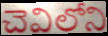
చెవిలోని